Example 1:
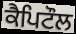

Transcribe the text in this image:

ਕੈਪਿਟੌਲ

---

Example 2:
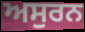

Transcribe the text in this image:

ਅਸੁਰਨ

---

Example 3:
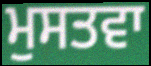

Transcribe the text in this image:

ਮੁਸਤਵਾ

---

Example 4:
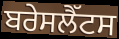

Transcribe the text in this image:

ਬਰੇਸਲੈੱਟਸ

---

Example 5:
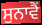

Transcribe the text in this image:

ਸੁਨਾਵੈਂ